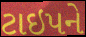
ટાઇપને